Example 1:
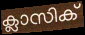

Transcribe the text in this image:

ക്ലാസിക്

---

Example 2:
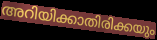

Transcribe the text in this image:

അറിയിക്കാതിരിക്കയും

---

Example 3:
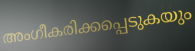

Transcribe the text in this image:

അംഗീകരിക്കപ്പെടുകയും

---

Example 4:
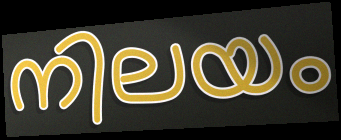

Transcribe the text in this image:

നിലയം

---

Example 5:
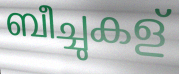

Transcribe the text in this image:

ബീച്ചുകള്